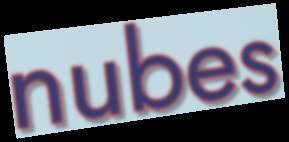
nubes